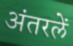
अंतरलें